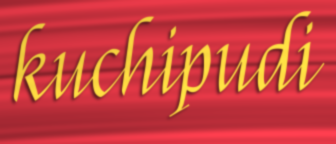
kuchipudi